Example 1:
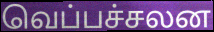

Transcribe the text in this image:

வெப்பச்சலன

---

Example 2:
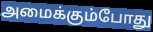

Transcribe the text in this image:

அமைக்கும்போது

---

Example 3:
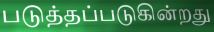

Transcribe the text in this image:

படுத்தப்படுகின்றது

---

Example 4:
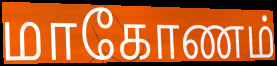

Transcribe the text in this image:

மாகோணம்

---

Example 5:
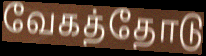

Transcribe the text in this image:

வேகத்தோடு